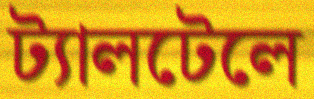
ট্যালটেলে